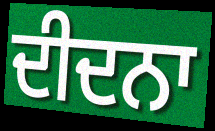
ਦੀਦਨਾ